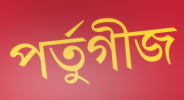
পৰ্তুগীজ